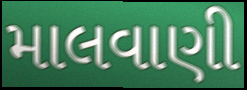
માલવાણી